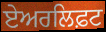
ਏਅਰਲਿਫ਼ਟ